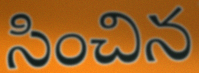
సించిన